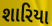
શારિયા